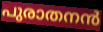
പുരാതനൻ